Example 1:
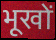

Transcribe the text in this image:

भूखों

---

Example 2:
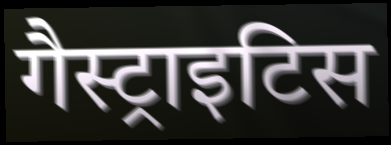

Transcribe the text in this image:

गैस्ट्राइटिस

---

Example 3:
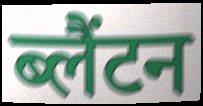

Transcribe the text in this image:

ब्लैंटन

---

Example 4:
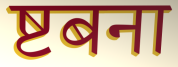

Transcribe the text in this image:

ष्टबना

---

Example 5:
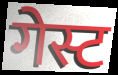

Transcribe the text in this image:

गेस्ट